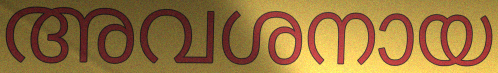
അവശനായ